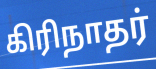
கிரிநாதர்